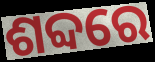
ଶବ୍ଦରେ